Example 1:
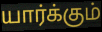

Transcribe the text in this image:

யார்க்கும்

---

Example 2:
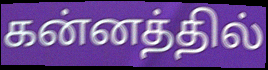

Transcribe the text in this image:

கன்னத்தில்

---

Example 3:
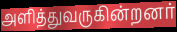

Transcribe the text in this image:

அளித்துவருகின்றனர்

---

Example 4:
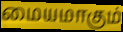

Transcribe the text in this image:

மையமாகும்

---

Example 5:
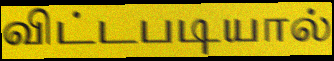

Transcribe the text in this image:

விட்டபடியால்